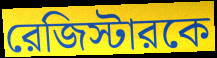
রেজিস্টারকে